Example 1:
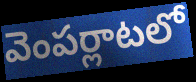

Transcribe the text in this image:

వెంపర్లాటలో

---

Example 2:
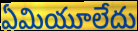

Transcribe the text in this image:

ఏమియూలేదు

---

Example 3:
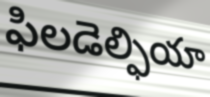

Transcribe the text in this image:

ఫిలడెల్ఫియా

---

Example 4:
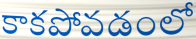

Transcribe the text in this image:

కాకపోవడంలో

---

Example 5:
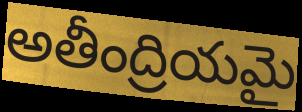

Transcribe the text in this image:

అతీంద్రియమై